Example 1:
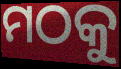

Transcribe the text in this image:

ମଠକୁ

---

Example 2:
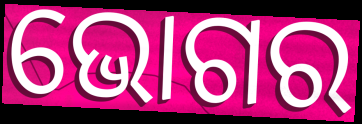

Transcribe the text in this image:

ଭୋଗର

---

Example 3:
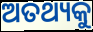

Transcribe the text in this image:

ଅତଥ୍ୟକୁ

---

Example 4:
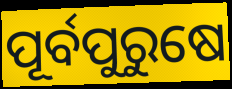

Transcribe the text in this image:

ପୂର୍ବପୁରୁଷେ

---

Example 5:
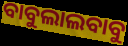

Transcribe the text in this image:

ବାବୁଲାଲବାବୁ